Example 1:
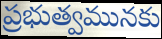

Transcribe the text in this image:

ప్రభుత్వమునకు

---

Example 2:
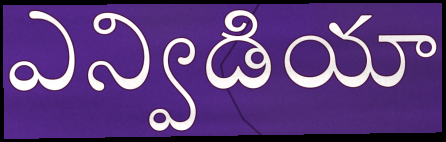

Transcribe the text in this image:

ఎన్విడియా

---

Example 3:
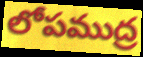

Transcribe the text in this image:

లోపముద్ర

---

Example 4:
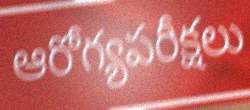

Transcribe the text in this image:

ఆరోగ్యపరీక్షలు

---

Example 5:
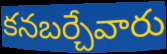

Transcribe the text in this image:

కనబర్చేవారు